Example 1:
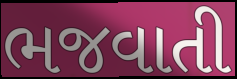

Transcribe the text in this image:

ભજવાતી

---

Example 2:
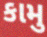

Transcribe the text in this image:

કામુ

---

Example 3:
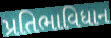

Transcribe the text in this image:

પ્રતિભાવિધાન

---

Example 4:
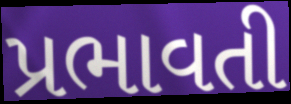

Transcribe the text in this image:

પ્રભાવતી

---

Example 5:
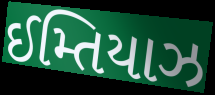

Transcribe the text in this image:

ઈમ્તિયાઝ